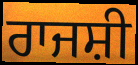
ਰਾਜਸ਼ੀ